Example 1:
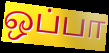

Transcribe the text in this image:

ஒப்பா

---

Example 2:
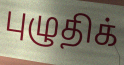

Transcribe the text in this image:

புழுதிக்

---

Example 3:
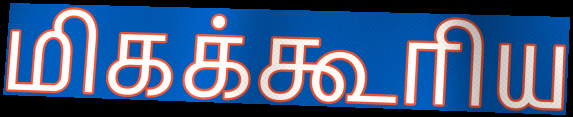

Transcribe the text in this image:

மிகக்கூரிய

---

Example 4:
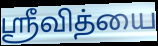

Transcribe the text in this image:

ஸ்ரீவித்யை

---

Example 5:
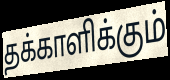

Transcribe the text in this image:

தக்காளிக்கும்